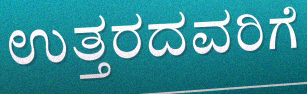
ಉತ್ತರದವರಿಗೆ